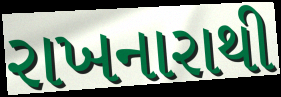
રાખનારાથી